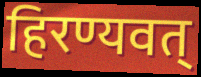
हिरण्यवत्